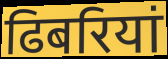
ढिबरियां